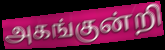
அகங்குன்றி